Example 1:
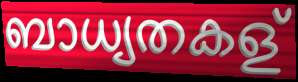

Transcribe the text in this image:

ബാധ്യതകള്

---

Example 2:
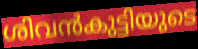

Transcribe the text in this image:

ശിവൻകുട്ടിയുടെ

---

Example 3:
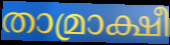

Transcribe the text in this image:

താമ്രാക്ഷീ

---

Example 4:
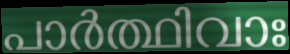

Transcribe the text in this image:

പാർത്ഥിവാഃ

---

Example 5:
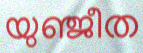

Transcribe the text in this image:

യുഞ്ജീത